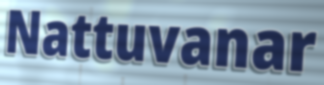
Nattuvanar